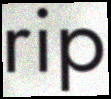
rip